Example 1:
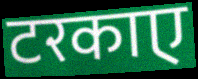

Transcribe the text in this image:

टरकाए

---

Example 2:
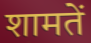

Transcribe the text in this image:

शामतें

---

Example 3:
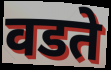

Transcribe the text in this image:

वडते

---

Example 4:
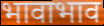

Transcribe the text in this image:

भावाभाव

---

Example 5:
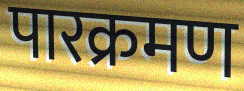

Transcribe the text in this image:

पारक्रमण